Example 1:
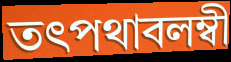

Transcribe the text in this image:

তৎপথাবলম্বী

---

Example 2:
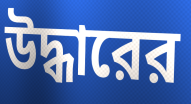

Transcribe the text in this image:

উদ্ধারের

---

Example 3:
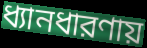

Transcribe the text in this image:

ধ্যানধারণায়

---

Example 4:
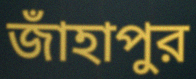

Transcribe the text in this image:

জাঁহাপুর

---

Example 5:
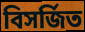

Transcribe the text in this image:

বিসর্জিত